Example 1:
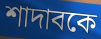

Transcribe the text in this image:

শাদাবকে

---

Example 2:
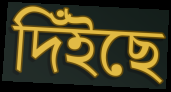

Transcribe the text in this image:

দিঁইছে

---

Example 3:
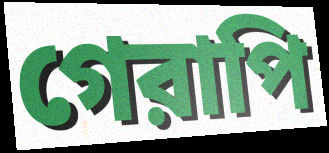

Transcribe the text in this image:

গেরাপি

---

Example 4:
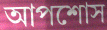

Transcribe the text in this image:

আপশোস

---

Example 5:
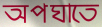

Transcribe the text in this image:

অপঘাতে